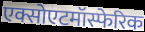
एक्सोएटमॉस्फेरिक